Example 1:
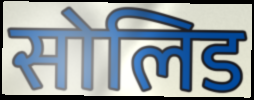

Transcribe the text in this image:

सोलिड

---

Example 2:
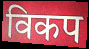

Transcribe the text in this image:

विकप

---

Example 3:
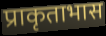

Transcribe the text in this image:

प्राकृताभास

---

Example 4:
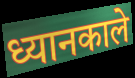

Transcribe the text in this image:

ध्यानकाले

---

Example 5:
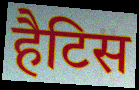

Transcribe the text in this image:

हैटिस